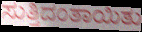
ಸುತ್ತಿದಂತಾಯಿತು